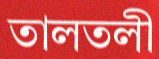
তালতলী